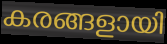
കരങ്ങളായി